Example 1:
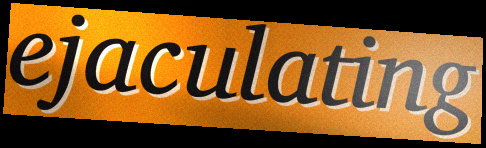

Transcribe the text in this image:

ejaculating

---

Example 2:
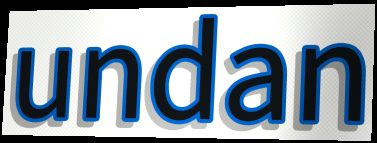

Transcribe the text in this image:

undan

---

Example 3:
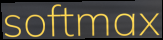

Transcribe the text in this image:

softmax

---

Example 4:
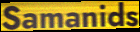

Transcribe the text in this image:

Samanids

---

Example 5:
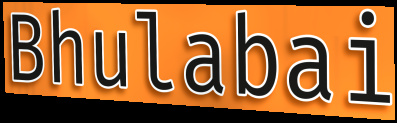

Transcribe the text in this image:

Bhulabai